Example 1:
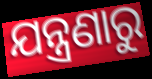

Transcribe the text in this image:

ଯନ୍ତ୍ରଣାରୁ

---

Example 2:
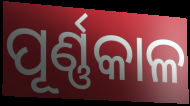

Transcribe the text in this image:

ପୂର୍ଣ୍ଣକାଳ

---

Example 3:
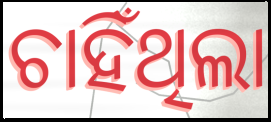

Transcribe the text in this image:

ଚାହିଁଥିଲା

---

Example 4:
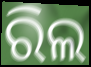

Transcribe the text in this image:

ରିଲ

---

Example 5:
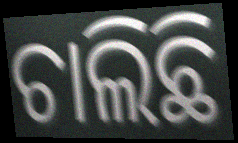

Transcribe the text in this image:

ଚାଲିଛି